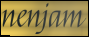
nenjam